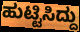
ಹುಟ್ಟಿಸಿದ್ದು